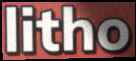
litho